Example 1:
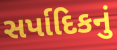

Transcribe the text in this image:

સર્પાદિકનું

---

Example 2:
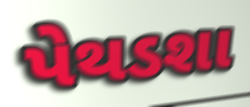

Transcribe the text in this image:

પેથડશા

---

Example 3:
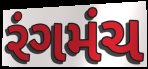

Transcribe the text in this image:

રંગમંચ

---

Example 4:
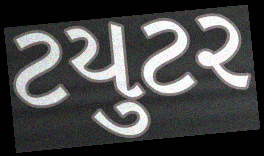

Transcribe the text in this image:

ટયુટર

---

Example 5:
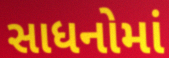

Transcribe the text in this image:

સાધનોમાં